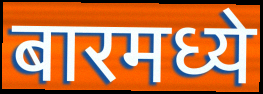
बारमध्ये